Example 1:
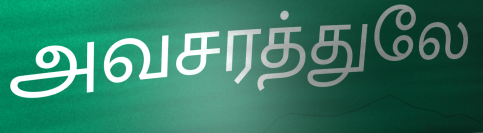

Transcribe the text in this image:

அவசரத்துலே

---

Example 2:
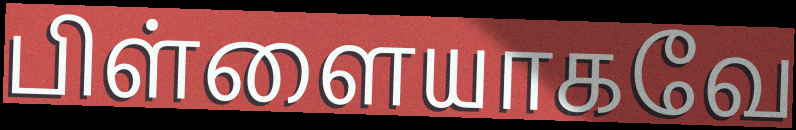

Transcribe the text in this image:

பிள்ளையாகவே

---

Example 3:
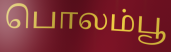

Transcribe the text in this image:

பொலம்பூ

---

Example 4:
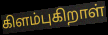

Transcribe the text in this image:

கிளம்புகிறாள்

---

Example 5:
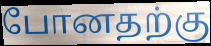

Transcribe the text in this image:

போனதற்கு